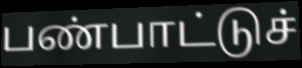
பண்பாட்டுச்